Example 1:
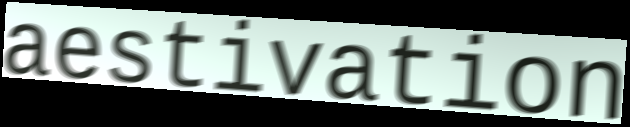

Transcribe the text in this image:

aestivation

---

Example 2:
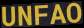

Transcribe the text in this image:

UNFAO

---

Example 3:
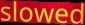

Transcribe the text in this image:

slowed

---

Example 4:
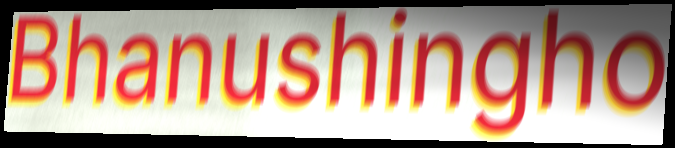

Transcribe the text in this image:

Bhanushingho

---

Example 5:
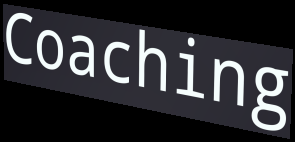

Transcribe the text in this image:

Coaching